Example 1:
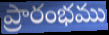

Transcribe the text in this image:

ప్రారంభము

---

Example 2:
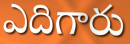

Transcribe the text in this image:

ఎదిగారు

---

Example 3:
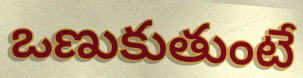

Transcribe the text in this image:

ఒణుకుతుంటే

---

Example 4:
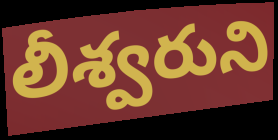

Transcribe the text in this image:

లీశ్వరుని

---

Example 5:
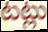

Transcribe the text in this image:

టట్లు